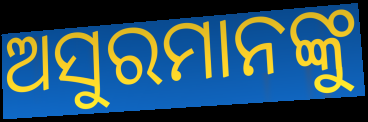
ଅସୁରମାନଙ୍କୁ